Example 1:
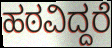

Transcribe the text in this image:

ಹಠವಿದ್ದರೆ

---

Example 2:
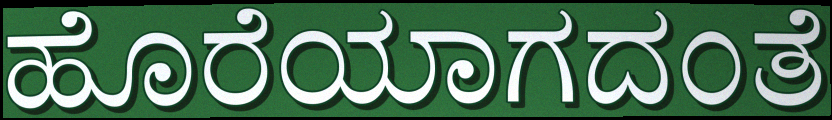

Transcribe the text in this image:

ಹೊರೆಯಾಗದಂತೆ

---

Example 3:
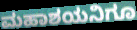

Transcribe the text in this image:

ಮಹಾಶಯನಿಗೂ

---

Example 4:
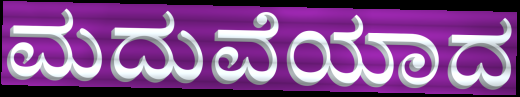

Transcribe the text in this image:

ಮದುವೆಯಾದ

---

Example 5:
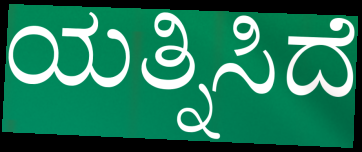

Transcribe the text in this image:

ಯತ್ನಿಸಿದೆ